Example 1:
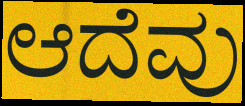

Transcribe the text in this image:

ಆದೆವು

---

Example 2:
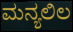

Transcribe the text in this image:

ಮನ್ಯಲಿಲ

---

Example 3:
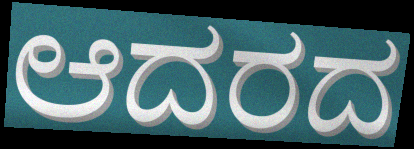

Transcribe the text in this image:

ಆದರದ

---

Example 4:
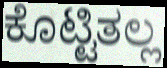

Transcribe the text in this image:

ಕೊಟ್ಟಿತಲ್ಲ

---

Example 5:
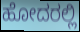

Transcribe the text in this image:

ಹೋದರಲ್ಲಿ